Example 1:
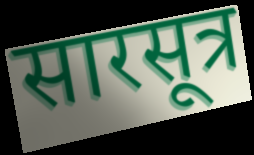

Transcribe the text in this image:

सारसूत्र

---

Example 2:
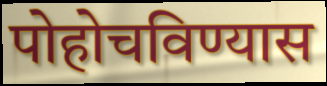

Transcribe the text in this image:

पोहोचविण्यास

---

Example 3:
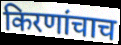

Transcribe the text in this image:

किरणांचाच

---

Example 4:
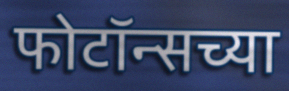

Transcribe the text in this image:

फोटॉन्सच्या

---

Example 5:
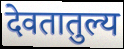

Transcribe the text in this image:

देवतातुल्य